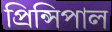
প্রিন্সিপাল